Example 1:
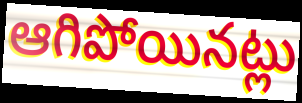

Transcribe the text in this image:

ఆగిపోయినట్లు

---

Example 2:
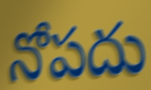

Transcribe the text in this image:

నోపదు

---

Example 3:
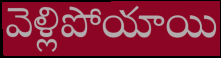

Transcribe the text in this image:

వెళ్లిపోయాయి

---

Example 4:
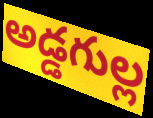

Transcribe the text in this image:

అడ్డగుల్ల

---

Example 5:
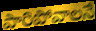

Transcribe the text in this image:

పారిపోవాలనే